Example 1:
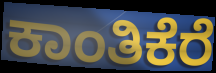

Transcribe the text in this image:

ಕಾಂತಿಕೆರೆ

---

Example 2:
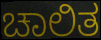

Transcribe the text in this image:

ಚಾಲಿತ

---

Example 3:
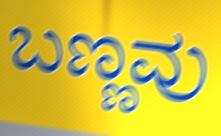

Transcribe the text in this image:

ಬಣ್ಣವು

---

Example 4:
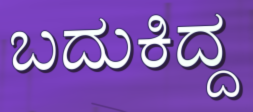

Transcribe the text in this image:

ಬದುಕಿದ್ದ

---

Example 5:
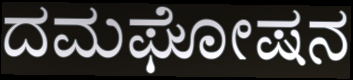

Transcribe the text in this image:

ದಮಘೋಷನ